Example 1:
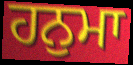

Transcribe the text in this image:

ਹਨੁਮਾ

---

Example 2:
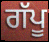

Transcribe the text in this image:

ਗੱਪੂ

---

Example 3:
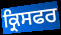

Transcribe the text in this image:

ਕ੍ਰਿਸਫਰ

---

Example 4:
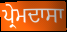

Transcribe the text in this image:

ਪ੍ਰੇਮਦਾਸਾ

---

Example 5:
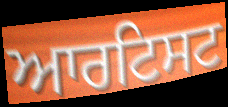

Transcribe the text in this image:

ਆਰਟਿਸਟ